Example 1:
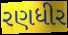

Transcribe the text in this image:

રણધીર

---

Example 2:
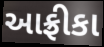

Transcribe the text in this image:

આફ્રીકા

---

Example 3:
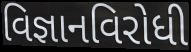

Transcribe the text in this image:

વિજ્ઞાનવિરોધી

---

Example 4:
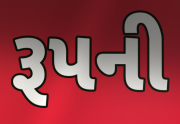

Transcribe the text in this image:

રૂપની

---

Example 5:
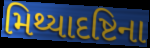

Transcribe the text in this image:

મિથ્યાદષ્ટિના